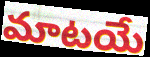
మాటయే